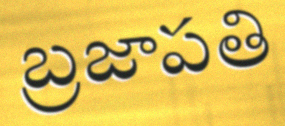
బ్రజాపతి